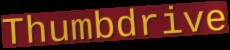
Thumbdrive